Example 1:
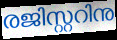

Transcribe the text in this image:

രജിസ്റ്ററിനു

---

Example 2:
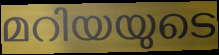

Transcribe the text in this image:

മറിയയുടെ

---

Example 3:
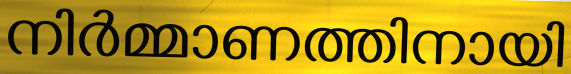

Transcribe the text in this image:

നിർമ്മാണത്തിനായി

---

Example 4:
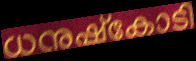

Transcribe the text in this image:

ധനുഷ്കോടി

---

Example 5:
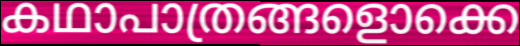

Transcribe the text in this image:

കഥാപാത്രങ്ങളൊക്കെ